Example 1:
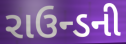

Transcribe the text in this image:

રાઉન્ડની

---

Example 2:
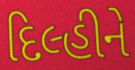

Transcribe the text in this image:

દિલ્હીને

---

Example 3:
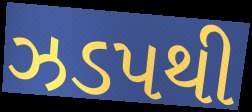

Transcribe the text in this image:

ઝડપથી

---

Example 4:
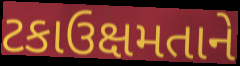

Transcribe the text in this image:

ટકાઉક્ષમતાને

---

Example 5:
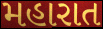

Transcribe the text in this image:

મહારાત